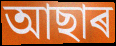
আছাৰ